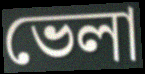
ভেলা